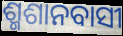
ଶ୍ମଶାନବାସୀ